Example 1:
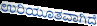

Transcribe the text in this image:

ಉರಿಯೂತವಾಗಿದೆ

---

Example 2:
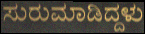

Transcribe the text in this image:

ಸುರುಮಾಡಿದ್ದಳು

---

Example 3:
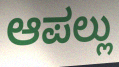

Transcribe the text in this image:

ಆಪಲ್ಲು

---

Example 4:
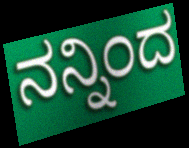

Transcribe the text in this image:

ನನ್ನಿಂದ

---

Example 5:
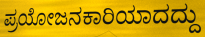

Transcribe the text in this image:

ಪ್ರಯೋಜನಕಾರಿಯಾದದ್ದು